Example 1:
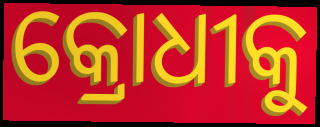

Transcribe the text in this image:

କ୍ରୋଧୀକୁ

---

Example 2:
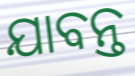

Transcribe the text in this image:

ଯାବନ୍ତ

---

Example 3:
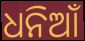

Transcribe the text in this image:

ଧନିଆଁ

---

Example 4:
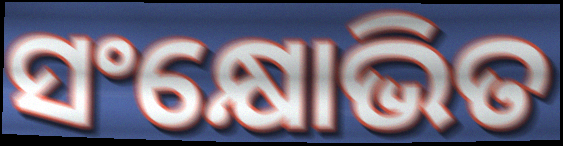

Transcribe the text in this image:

ସଂକ୍ଷୋଭିତ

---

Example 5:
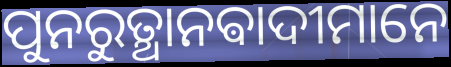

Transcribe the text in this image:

ପୁନରୁତ୍ଥାନଵାଦୀମାନେ